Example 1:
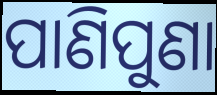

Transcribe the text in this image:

ପାଣିପୁଣା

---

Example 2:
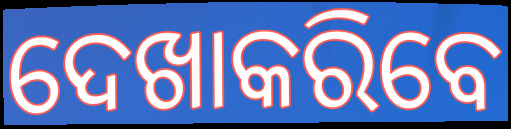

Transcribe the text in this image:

ଦେଖାକରିବେ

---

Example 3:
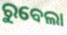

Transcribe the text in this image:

ରୁବେଲା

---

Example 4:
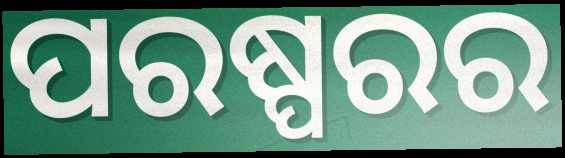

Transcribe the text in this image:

ପରଷ୍ପରର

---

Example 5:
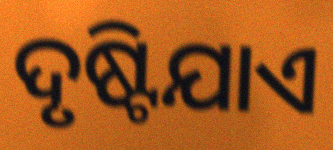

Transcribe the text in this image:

ଦୃଷ୍ଟିଯାଏ